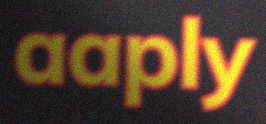
aaply